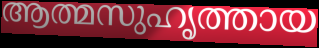
ആത്മസുഹൃത്തായ